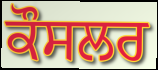
ਕੌਸਲਰ